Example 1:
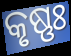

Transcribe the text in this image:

କୃଷ୍ଣଃ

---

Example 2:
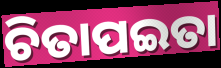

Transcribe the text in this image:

ଚିତାପଇତା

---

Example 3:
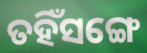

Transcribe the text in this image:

ତହିଁସଙ୍ଗେ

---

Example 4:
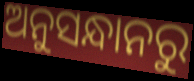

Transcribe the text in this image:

ଅନୁସନ୍ଧାନରୁ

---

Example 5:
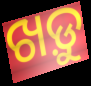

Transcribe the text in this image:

ଖଡ଼ୁ